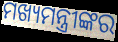
ମଖ୍ୟମନ୍ତ୍ରୀଙ୍କର